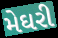
મેઘરી